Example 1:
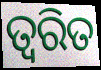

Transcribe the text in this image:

ତ୍ବରିତ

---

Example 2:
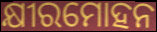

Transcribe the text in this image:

କ୍ଷୀରମୋହନ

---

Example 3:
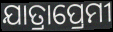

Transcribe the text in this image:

ଯାତ୍ରାପ୍ରେମୀ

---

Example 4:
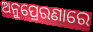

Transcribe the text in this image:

ଅନୁପ୍ରେରଣାରେ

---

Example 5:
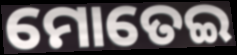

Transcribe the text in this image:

ମୋତେଇ